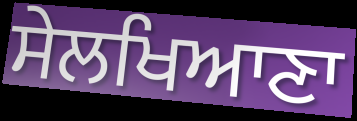
ਸੇਲਖਿਆਣਾ